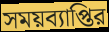
সময়ব্যাপ্তির